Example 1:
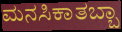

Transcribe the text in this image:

ಮನಸಿಕಾತಬ್ಬಾ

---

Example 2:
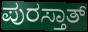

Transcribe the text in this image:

ಪುರಸ್ತಾತ್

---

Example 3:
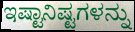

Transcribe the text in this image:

ಇಷ್ಟಾನಿಷ್ಟಗಳನ್ನು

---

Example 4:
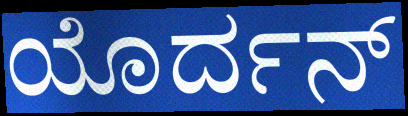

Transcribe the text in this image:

ಯೊರ್ದನ್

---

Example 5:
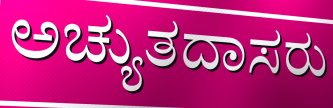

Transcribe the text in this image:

ಅಚ್ಯುತದಾಸರು